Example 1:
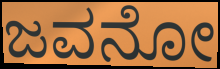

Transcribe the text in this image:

ಜವನೋ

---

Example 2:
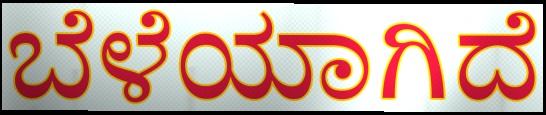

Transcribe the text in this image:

ಬೆಳೆಯಾಗಿದೆ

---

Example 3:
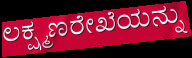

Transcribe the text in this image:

ಲಕ್ಷ್ಮಣರೇಖೆಯನ್ನು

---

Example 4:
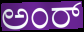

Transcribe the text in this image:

ಅಂರ್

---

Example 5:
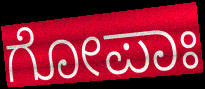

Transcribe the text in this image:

ಗೋಪಾಃ